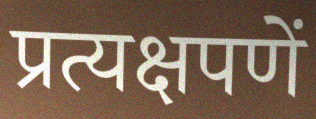
प्रत्यक्षपणें